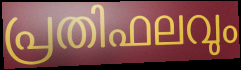
പ്രതിഫലവും